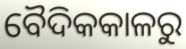
ବୈଦିକକାଳରୁ